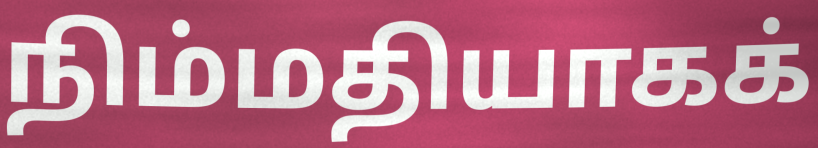
நிம்மதியாகக்